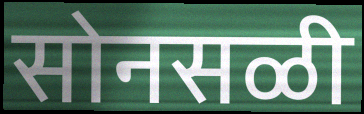
सोनसळी